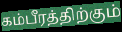
கம்பீரத்திற்கும்